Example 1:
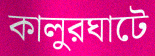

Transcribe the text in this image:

কালুরঘাটে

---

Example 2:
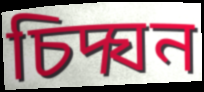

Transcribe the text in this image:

চিদ্ঘন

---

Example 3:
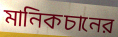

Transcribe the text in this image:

মানিকচানের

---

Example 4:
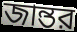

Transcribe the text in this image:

জান্তর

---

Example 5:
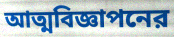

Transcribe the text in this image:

আত্মবিজ্ঞাপনের